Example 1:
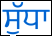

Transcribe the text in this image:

ਸੁੱਧਾ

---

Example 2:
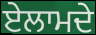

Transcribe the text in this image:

ਏਲਾਮਦੇ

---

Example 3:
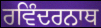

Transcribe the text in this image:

ਰਵਿੰਦਰਨਾਥ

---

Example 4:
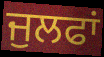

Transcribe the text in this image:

ਜੁਲਫਾਂ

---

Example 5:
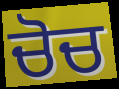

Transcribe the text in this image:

ਚੋਚ